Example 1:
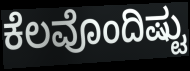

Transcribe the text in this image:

ಕೆಲವೊಂದಿಷ್ಟು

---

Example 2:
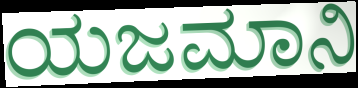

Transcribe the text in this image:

ಯಜಮಾನಿ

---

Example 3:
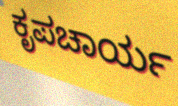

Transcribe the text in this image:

ಕೃಪಚಾರ್ಯ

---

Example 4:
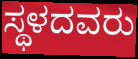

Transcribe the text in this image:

ಸ್ಥಳದವರು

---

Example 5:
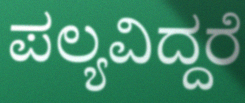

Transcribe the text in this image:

ಪಲ್ಯವಿದ್ದರೆ